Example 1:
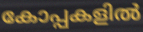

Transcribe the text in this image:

കോപ്പകളിൽ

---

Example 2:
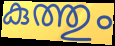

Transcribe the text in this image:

കുത്തും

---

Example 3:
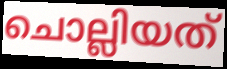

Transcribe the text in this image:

ചൊല്ലിയത്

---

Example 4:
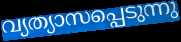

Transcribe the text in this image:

വ്യത്യാസപ്പെടുന്നു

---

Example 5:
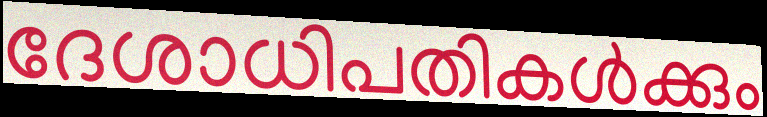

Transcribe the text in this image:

ദേശാധിപതികൾക്കും